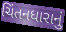
ચિંતનધારાનું